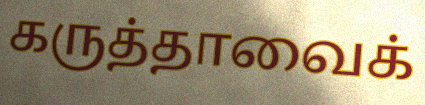
கருத்தாவைக்